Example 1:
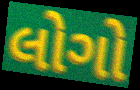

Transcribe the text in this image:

લોગો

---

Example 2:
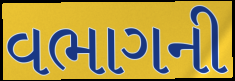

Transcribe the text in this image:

વભાગની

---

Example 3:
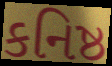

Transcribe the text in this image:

કનિષ્ઠ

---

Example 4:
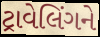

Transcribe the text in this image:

ટ્રાવેલિંગને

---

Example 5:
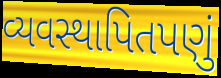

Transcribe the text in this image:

વ્યવસ્થાપિતપણું